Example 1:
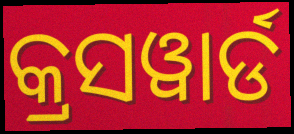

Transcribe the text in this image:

କ୍ରସୱାର୍ଡ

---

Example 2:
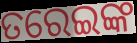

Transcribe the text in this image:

ତରେଇଙ୍କ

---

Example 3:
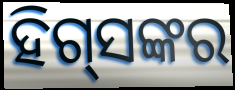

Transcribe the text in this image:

ହିଗ୍‌ସଙ୍କର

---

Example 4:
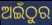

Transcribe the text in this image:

ଅଇଁଠୁର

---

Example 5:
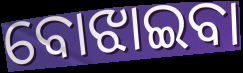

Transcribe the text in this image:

ବୋଝାଇବା